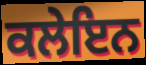
ਕਲੇਇਨ